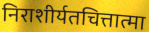
निराशीर्यतचित्तात्मा